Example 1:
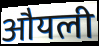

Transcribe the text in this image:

औयली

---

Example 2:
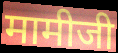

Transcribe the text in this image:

मामीजी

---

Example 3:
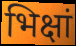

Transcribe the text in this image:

भिक्षां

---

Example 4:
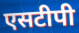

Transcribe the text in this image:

एसटीपी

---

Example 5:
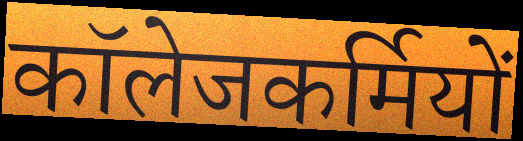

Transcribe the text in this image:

कॉलेजकर्मियों